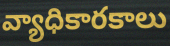
వ్యాధికారకాలు